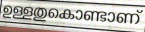
ഉള്ളതുകൊണ്ടാണ്